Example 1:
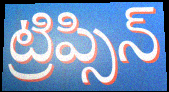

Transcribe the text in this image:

ట్రిప్సిన్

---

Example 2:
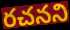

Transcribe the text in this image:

రచనని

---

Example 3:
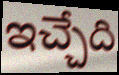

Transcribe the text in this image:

ఇచ్చేది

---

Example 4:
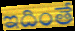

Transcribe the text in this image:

ఇదింతే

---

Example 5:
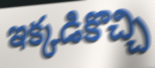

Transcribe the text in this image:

ఇక్కడికొచ్చి